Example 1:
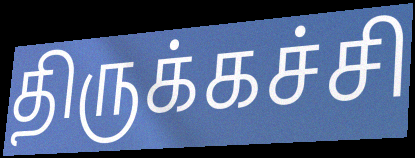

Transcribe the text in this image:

திருக்கச்சி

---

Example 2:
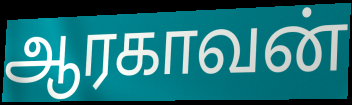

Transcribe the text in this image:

ஆரகாவன்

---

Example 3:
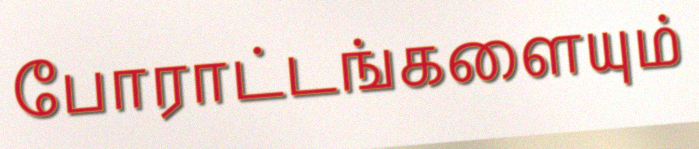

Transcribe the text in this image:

போராட்டங்களையும்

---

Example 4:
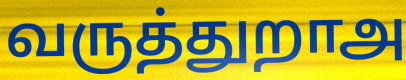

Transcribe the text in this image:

வருத்துறாஅ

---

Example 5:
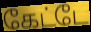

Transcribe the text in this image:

கேட்டே